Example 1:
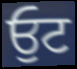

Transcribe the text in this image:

ਓੁਟ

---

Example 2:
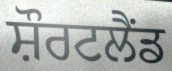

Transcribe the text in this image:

ਸ਼ੌਰਟਲੈਂਡ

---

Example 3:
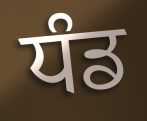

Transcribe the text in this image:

ਧੰਡ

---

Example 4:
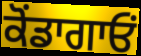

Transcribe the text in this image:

ਕੋਂਡਾਗਾਓਂ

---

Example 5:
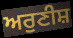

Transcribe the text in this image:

ਅਰੁਣੀਸ਼